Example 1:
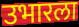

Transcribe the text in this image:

उभारला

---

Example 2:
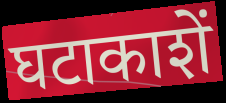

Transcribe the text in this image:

घटाकाशें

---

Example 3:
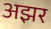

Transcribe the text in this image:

अझर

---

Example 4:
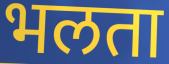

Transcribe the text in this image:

भलता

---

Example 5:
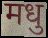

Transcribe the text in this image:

मधु